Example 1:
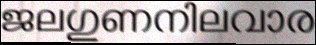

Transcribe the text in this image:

ജലഗുണനിലവാര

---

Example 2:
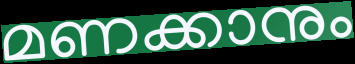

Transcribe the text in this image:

മണക്കാനും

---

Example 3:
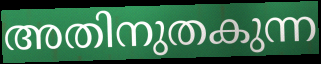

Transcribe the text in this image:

അതിനുതകുന്ന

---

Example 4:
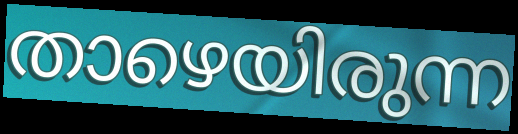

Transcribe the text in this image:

താഴെയിരുന്ന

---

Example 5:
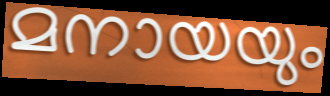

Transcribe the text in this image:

മനായയും